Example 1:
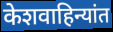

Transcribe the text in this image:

केशवाहिन्यांत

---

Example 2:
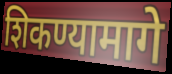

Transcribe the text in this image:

शिकण्यामागे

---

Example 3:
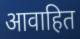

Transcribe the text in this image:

आवाहित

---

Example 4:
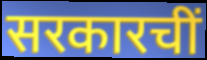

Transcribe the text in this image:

सरकारचीं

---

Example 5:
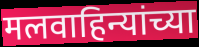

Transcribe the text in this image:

मलवाहिन्यांच्या